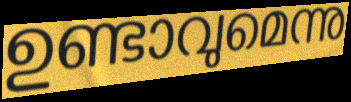
ഉണ്ടാവുമെന്നു